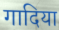
गादिया